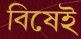
বিষেই